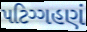
પટિગ્ગહણં